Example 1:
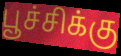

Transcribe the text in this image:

பூச்சிக்கு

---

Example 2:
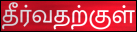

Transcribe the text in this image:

தீர்வதற்குள்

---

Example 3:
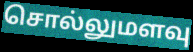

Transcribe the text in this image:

சொல்லுமளவு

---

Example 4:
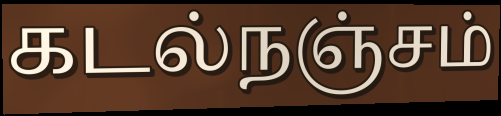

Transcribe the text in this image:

கடல்நஞ்சம்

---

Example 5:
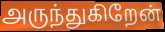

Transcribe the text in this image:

அருந்துகிறேன்